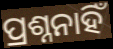
ପ୍ରଶ୍ନନାହିଁ